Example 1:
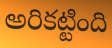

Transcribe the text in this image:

అరికట్టింది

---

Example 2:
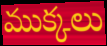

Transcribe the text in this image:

ముక్కలు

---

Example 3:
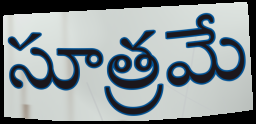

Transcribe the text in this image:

సూత్రమే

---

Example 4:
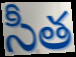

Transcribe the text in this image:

సీత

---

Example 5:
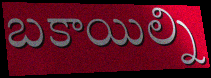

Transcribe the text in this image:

బకాయిల్ని